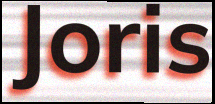
Joris